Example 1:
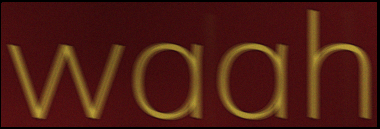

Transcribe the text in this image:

waah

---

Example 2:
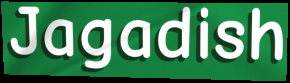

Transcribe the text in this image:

Jagadish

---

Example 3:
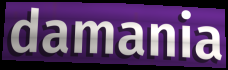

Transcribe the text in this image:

damania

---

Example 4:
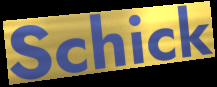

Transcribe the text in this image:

Schick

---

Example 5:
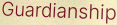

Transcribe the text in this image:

Guardianship